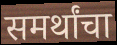
समर्थांचा